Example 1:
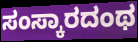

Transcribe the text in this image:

ಸಂಸ್ಕಾರದಂಥ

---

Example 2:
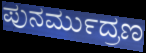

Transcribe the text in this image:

ಪುನರ್ಮುದ್ರಣ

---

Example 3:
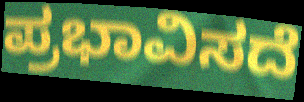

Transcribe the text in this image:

ಪ್ರಭಾವಿಸದೆ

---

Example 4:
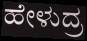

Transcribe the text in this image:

ಹೇಳುದ್ರ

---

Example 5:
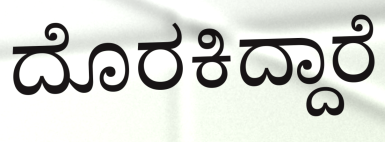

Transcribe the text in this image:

ದೊರಕಿದ್ದಾರೆ